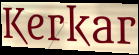
Kerkar